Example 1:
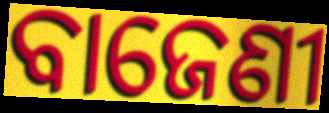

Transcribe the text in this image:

ବାଜେଣୀ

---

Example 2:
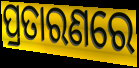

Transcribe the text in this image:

ପ୍ରତାରଣରେ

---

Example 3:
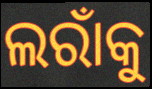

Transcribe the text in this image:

ଲରାଁକୁ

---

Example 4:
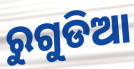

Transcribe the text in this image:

ରୁଗୁଡିଆ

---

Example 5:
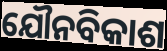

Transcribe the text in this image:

ଯୌନବିକାଶ